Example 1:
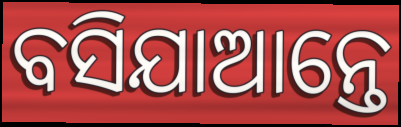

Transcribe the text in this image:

ବସିଯାଆନ୍ତେ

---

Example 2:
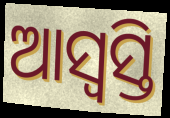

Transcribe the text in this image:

ଆସ୍ୱସ୍ତି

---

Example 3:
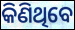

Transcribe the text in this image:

କିଣିଥିବେ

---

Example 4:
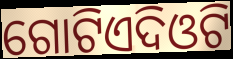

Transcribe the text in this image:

ଗୋଟିଏଦିଓଟି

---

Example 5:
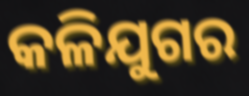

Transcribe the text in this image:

କଳିଯୁଗର